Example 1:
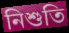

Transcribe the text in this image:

নিশুতি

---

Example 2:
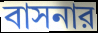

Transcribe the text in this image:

বাসনার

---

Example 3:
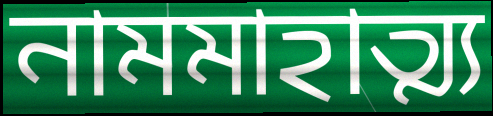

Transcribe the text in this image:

নামমাহাত্ম্য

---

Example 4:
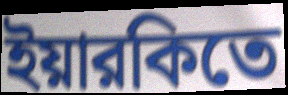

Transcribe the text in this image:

ইয়ারকিতে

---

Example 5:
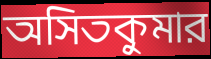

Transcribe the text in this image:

অসিতকুমার